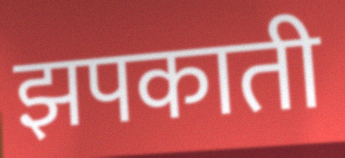
झपकाती